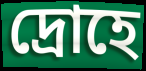
দ্রোহে